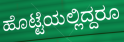
ಹೊಟ್ಟೆಯಲ್ಲಿದ್ದರೂ